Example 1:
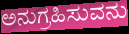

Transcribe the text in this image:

ಅನುಗ್ರಹಿಸುವನು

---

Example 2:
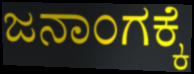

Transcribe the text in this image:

ಜನಾಂಗಕ್ಕೆ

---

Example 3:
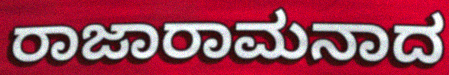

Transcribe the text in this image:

ರಾಜಾರಾಮನಾದ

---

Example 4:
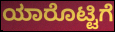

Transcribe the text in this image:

ಯಾರೊಟ್ಟಿಗೆ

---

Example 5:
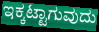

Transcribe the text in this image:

ಇಕ್ಕಟ್ಟಾಗುವುದು